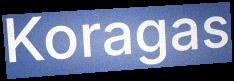
Koragas